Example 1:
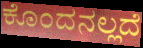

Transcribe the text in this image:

ಕೊಂದನಲ್ಲದೆ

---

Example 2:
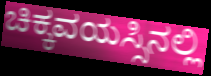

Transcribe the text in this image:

ಚಿಕ್ಕವಯಸ್ಸಿನಲ್ಲಿ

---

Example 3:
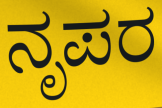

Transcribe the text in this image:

ನೃಪರ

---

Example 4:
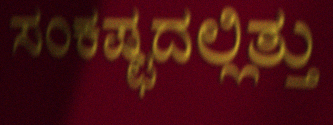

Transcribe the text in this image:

ಸಂಕಷ್ಟದಲ್ಲಿತ್ತು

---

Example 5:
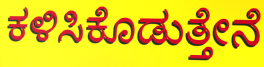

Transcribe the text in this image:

ಕಳಿಸಿಕೊಡುತ್ತೇನೆ